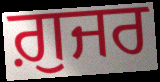
ਗ਼ੁਜਰ